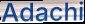
Adachi